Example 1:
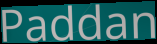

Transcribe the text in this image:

Paddan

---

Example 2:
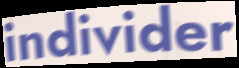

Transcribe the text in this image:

individer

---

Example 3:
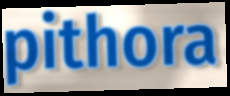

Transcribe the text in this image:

pithora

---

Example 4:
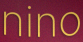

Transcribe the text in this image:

nino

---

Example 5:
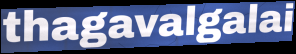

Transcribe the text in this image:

thagavalgalai